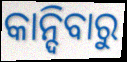
କାନ୍ଦିବାରୁ